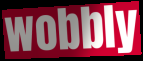
wobbly